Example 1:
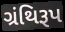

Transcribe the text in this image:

ગ્રંથિરૂપ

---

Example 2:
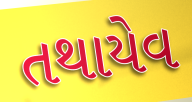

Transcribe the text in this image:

તથાયેવ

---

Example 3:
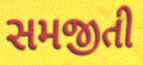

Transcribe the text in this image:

સમજીતી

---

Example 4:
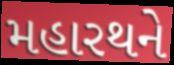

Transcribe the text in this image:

મહારથને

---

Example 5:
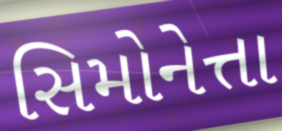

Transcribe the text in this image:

સિમોનેત્તા